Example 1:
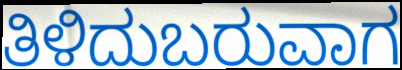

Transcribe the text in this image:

ತಿಳಿದುಬರುವಾಗ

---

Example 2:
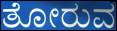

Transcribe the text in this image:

ತೋರುವ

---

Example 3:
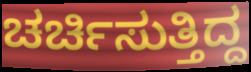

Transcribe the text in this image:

ಚರ್ಚಿಸುತ್ತಿದ್ದ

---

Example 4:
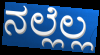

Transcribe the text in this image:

ನಲ್ಲೆಲ್ಲ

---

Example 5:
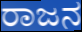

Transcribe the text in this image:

ರಾಜನ